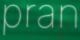
pran